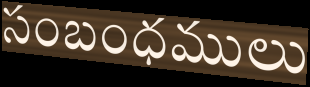
సంబంధములు